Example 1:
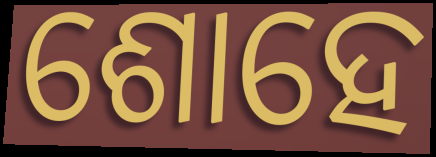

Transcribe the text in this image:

ଶୋହେ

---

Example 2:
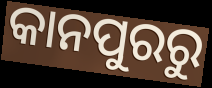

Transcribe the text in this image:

କାନପୁରରୁ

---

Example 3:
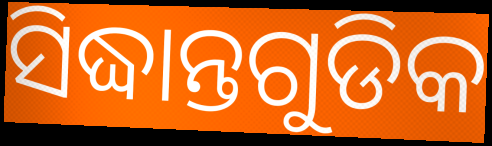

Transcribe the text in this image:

ସିଦ୍ଧାନ୍ତଗୁଡିକ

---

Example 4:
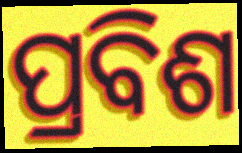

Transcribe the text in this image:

ପ୍ରବିଶ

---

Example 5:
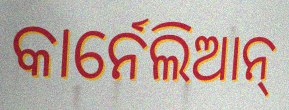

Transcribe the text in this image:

କାର୍ନେଲିଆନ୍